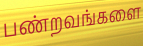
பண்றவங்களை